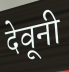
देवूनी